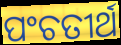
ପଂଚତୀର୍ଥ